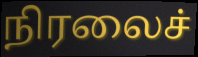
நிரலைச்